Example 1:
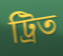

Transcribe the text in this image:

ট্ৰিত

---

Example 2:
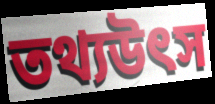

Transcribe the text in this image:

তথ্যউৎস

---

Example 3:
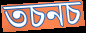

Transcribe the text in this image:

তচনচ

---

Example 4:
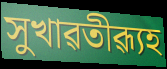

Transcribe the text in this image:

সুখাৱতীৱ্যূহ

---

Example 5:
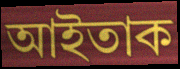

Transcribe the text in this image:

আইতাক